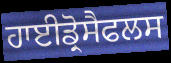
ਹਾਈਡ੍ਰੋਸੈਫਲਸ